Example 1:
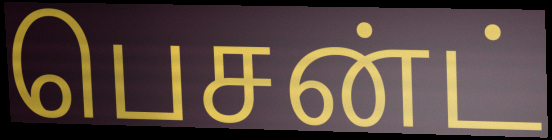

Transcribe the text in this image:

பெசன்ட்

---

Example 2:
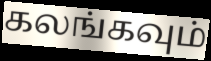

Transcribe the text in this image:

கலங்கவும்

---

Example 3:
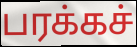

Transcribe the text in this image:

பரக்கச்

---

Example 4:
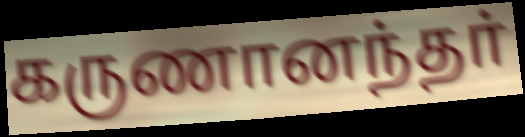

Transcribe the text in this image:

கருணானந்தர்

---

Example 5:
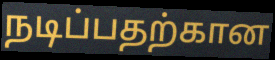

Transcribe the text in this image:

நடிப்பதற்கான